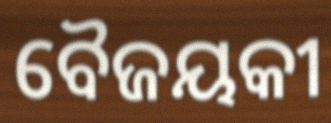
ବୈଜୟକୀ